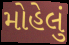
મોહેલું